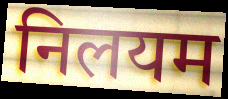
निलयम